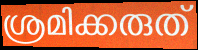
ശ്രമിക്കരുത്